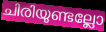
ചിരിയുണ്ടല്ലോ